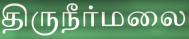
திருநீர்மலை